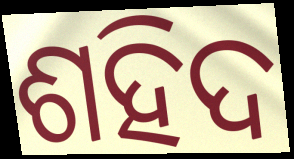
ଶହିଦ